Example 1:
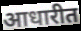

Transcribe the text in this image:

आधारीत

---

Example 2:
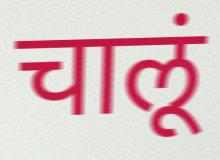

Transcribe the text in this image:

चालूं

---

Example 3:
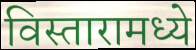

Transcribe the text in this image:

विस्तारामध्ये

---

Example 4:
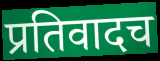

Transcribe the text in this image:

प्रतिवादच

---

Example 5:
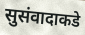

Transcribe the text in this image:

सुसंवादाकडे